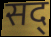
सद्